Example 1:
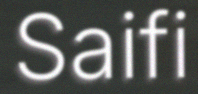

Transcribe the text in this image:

Saifi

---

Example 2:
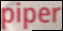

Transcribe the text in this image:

piper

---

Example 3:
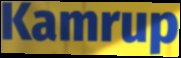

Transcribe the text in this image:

Kamrup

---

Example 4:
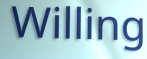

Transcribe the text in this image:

Willing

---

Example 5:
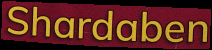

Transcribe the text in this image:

Shardaben